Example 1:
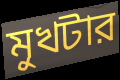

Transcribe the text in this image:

মুখটার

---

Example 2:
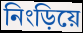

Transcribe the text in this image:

নিংড়িয়ে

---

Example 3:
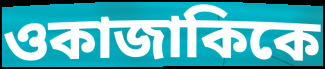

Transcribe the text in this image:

ওকাজাকিকে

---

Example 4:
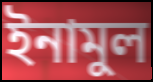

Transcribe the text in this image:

ইনামুল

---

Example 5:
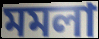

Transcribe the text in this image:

মমলা